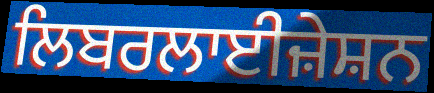
ਲਿਬਰਲਾਈਜ਼ੇਸ਼ਨ